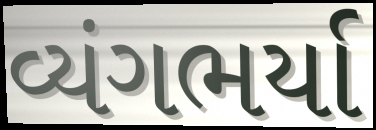
વ્યંગભર્યા